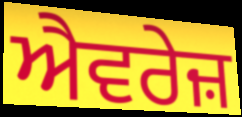
ਐਵਰੇਜ਼